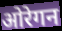
ओरेगन